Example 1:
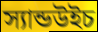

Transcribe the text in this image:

স্যান্ডউইচ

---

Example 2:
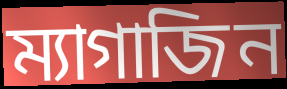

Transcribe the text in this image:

ম্যাগাজিন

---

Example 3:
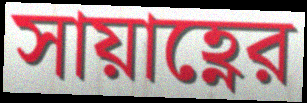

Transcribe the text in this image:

সায়াহ্ণের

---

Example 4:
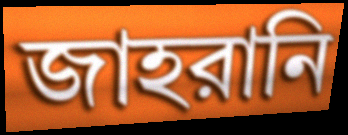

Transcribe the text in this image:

জাহরানি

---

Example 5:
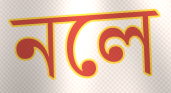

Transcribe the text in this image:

নলে